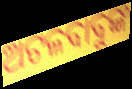
ଅଟଳବାବୁଙ୍କ